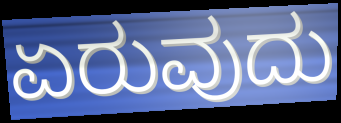
ಏರುವುದು